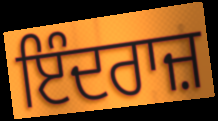
ਇੰਦਰਾਜ਼